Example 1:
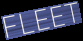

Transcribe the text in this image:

FLEET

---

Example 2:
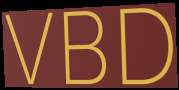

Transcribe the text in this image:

VBD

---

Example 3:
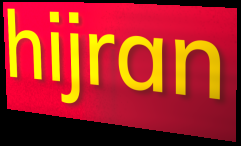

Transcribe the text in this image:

hijran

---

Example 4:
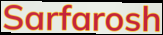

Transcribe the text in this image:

Sarfarosh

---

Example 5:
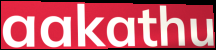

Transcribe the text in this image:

aakathu